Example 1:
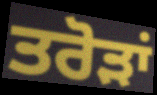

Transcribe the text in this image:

ਤਰੋੜਾਂ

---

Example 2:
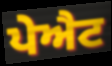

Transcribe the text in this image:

ਪੇਐਟ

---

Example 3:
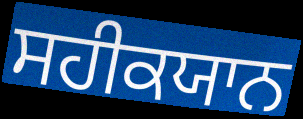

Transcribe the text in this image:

ਸਹੀਕਯਾਨ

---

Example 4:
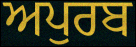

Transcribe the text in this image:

ਅਪੁਰਬ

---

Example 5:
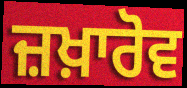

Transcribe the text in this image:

ਜ਼ਖ਼ਾਰੋਵ